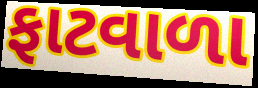
ફાટવાળા